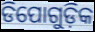
ଡିପୋଗୁଡ଼ିକ